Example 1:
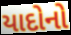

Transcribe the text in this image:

યાદોનો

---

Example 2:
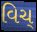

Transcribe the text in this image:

વિચ્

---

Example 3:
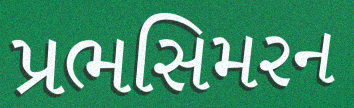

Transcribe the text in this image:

પ્રભસિમરન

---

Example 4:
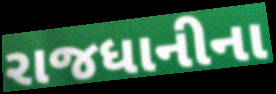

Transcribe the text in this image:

રાજધાનીના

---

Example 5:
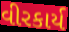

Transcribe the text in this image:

વીરકાર્ય